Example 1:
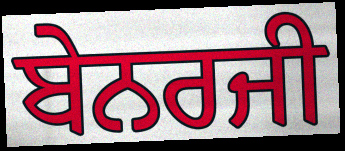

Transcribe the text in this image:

ਬੇਨਰਜੀ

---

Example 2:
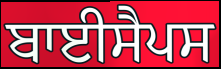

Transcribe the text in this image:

ਬਾਈਸੈਪਸ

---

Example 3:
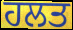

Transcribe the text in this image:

ਹਲਤ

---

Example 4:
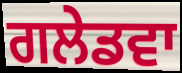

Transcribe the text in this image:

ਗਲੇਡਵਾ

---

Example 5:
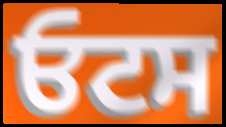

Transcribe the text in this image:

ਓਟਸ